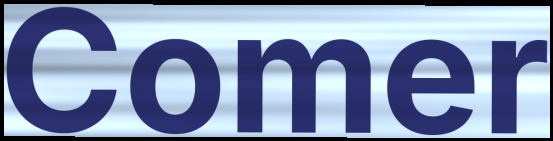
Comer